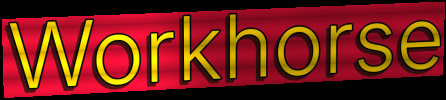
Workhorse